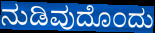
ನುಡಿವುದೊಂದು